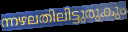
ന്നഴലതിലിട്ടുരുകും